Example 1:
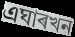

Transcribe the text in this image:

এঘাৰখন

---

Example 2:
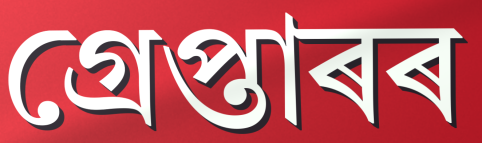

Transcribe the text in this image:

গ্ৰেপ্তাৰৰ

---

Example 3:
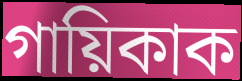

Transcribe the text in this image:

গায়িকাক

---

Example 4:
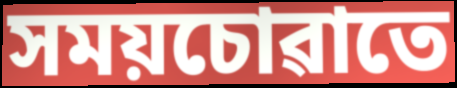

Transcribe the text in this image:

সময়চোৱাতে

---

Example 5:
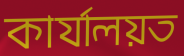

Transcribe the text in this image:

কাৰ্যালয়ত